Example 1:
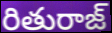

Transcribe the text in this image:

రితురాజ్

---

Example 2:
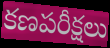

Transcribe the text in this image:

కణపరీక్షలు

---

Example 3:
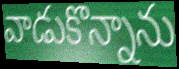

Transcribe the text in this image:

వాడుకొన్నాను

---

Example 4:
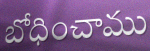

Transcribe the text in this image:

బోధించాము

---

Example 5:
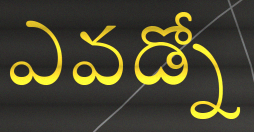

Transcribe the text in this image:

ఎవడ్నో